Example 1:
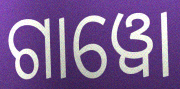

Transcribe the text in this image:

ଗାୱୋ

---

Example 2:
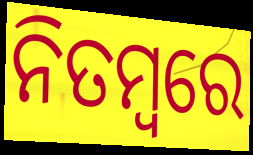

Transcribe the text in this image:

ନିତମ୍ୱରେ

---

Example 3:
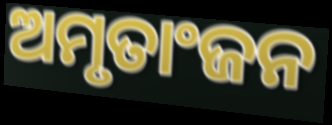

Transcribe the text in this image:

ଅମୃତାଂଜନ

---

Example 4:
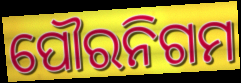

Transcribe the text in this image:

ପୌରନିଗମ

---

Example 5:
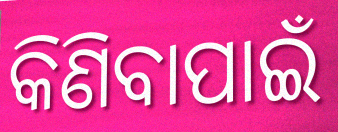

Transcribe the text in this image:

କିଣିବାପାଇଁ